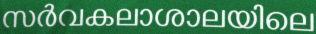
സർവകലാശാലയിലെ